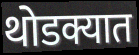
थोडक्यात